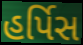
હર્પિસ